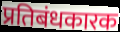
प्रतिबंधकारक